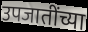
उपजातींच्या